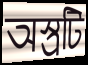
অস্ত্রটি